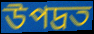
উপদ্রত